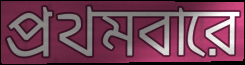
প্রথমবারে